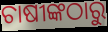
ଚାଷୀଙ୍କଠାରୁ